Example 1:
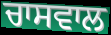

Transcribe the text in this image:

ਚਾਸਵਾਲ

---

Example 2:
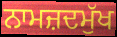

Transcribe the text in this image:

ਨਾਮਜ਼ਦਮੁੱਖ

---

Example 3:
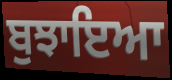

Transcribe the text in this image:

ਬੁਝਾਇਆ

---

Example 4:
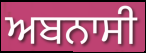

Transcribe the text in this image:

ਅਬਨਾਸੀ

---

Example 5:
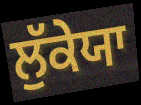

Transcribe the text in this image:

ਲੁੱਕੇਯਾ